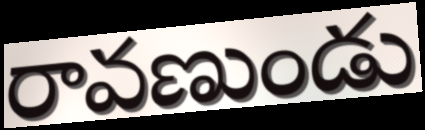
రావణుండు